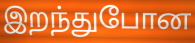
இறந்துபோன